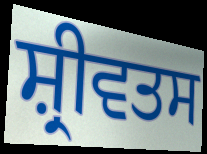
ਸ਼੍ਰੀਵਤਸ